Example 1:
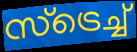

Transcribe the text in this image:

സ്ട്രെച്ച്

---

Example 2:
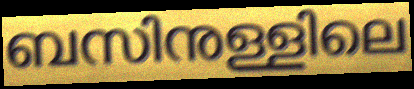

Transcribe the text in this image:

ബസിനുള്ളിലെ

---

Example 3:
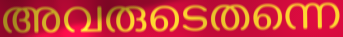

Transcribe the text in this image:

അവരുടെതന്നെ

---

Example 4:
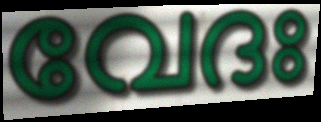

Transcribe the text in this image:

വേദഃ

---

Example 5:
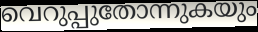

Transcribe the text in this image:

വെറുപ്പുതോന്നുകയും